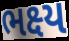
ભક્ષ્ય